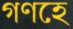
গণহে